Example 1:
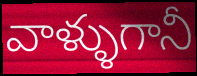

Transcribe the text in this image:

వాళ్ళుగానీ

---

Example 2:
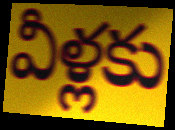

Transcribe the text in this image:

వీళ్లకు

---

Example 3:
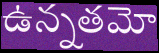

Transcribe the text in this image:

ఉన్నతమో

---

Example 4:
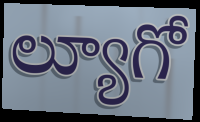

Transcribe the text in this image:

ల్యూగో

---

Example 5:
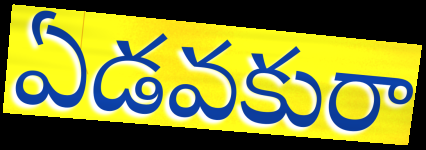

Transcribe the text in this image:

ఏడవకురా